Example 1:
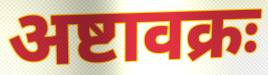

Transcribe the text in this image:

अष्टावक्रः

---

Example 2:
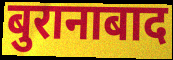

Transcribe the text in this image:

बुरानाबाद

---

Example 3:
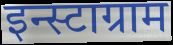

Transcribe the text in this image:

इन्स्टाग्राम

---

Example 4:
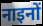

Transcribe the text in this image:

नाइनों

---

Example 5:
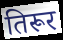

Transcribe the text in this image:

तिरूर